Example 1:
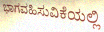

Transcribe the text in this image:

ಭಾಗವಹಿಸುವಿಕೆಯಲ್ಲಿ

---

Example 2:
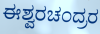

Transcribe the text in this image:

ಈಶ್ವರಚಂದ್ರರ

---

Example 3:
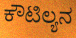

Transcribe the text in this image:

ಕೌಟಿಲ್ಯನ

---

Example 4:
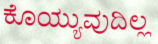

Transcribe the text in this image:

ಕೊಯ್ಯುವುದಿಲ್ಲ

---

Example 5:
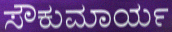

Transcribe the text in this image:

ಸೌಕುಮಾರ್ಯ